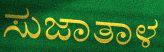
ಸುಜಾತಾಳ